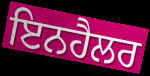
ਇਨਹੈਲਰ